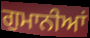
ਗੁਮਾਨੀਆਂ